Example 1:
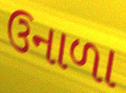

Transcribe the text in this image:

ઉનાળા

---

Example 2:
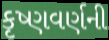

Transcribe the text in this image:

કૃષ્ણવર્ણની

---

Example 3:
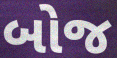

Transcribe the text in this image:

બોજ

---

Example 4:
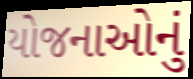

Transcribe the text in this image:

યોજનાઓનું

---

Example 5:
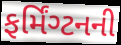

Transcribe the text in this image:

ફર્મિંગ્ટનની